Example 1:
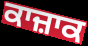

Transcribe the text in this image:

ਕਾਜ਼ਾਕ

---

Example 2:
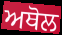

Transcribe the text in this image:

ਅਥੋਲ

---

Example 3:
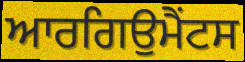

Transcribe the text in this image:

ਆਰਗਿਉਮੈਂਟਸ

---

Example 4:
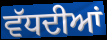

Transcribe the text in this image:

ਵੱਧਦੀਆਂ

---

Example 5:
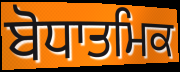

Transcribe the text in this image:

ਬੋਧਾਤਮਿਕ